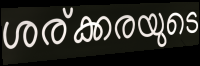
ശര്ക്കരയുടെ